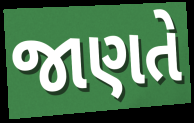
જાણતે